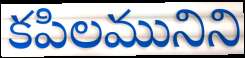
కపిలమునిని